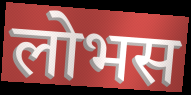
लोभस